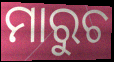
ମାରୁଚ